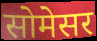
सोमेसर